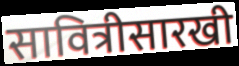
सावित्रीसारखी